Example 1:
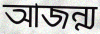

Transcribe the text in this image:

আজন্ম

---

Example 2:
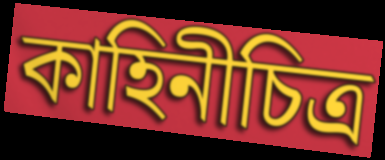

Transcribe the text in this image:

কাহিনীচিত্র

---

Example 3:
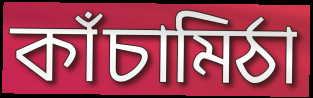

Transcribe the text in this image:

কাঁচামিঠা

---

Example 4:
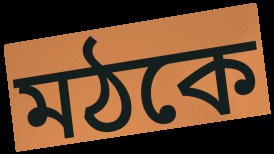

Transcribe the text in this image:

মঠকে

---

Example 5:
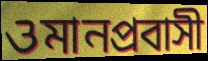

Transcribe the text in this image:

ওমানপ্রবাসী